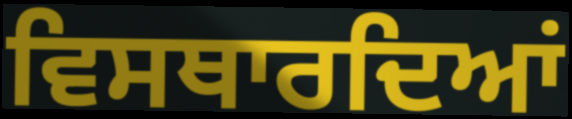
ਵਿਸਥਾਰਦਿਆਂ